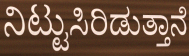
ನಿಟ್ಟುಸಿರಿಡುತ್ತಾನೆ